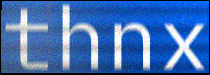
thnx